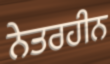
ਨੇਤਰਹੀਨ